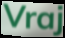
Vraj